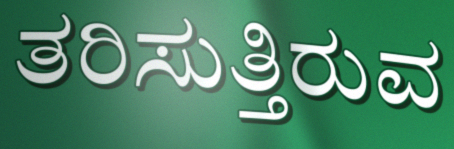
ತರಿಸುತ್ತಿರುವ